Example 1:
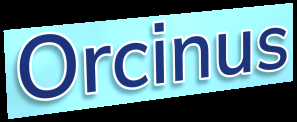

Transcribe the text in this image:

Orcinus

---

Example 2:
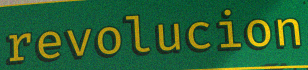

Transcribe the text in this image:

revolucion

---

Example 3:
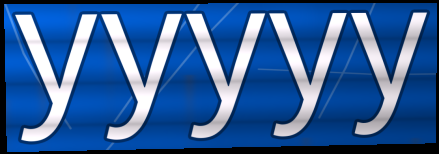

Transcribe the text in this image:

yyyyy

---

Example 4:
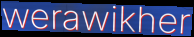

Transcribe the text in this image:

werawikher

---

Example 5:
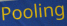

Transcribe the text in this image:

Pooling